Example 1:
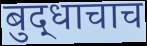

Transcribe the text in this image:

बुद्धाचाच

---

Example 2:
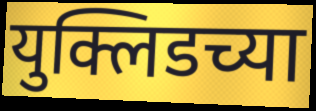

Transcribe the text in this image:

युक्लिडच्या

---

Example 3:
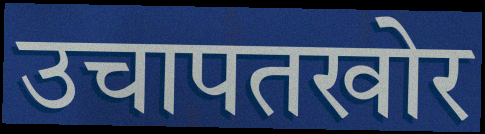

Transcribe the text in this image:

उचापतखोर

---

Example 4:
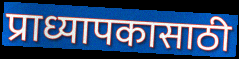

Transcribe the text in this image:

प्राध्यापकासाठी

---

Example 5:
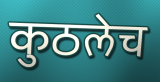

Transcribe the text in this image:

कुठलेच